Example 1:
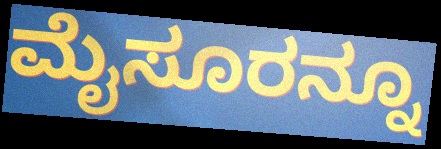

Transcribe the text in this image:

ಮೈಸೂರನ್ನೂ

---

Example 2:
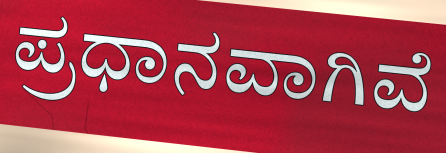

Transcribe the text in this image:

ಪ್ರಧಾನವಾಗಿವೆ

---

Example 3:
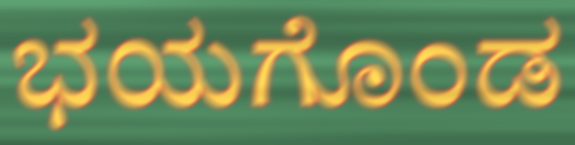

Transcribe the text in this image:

ಭಯಗೊಂಡ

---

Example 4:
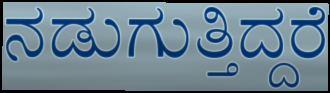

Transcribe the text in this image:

ನಡುಗುತ್ತಿದ್ದರೆ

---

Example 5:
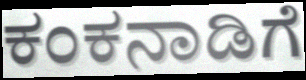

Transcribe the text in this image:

ಕಂಕನಾಡಿಗೆ